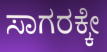
ಸಾಗರಕ್ಕೇ